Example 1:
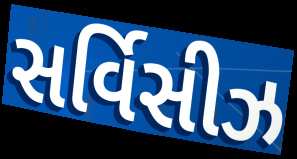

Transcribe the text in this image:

સર્વિસીઝ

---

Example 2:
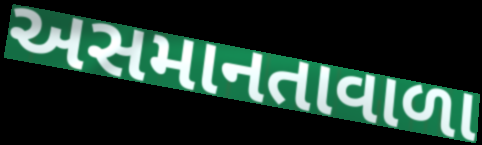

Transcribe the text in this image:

અસમાનતાવાળા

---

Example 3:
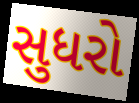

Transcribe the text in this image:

સુધરો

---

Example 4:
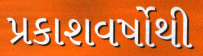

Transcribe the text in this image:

પ્રકાશવર્ષોથી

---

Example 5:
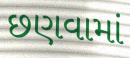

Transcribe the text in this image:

છણવામાં